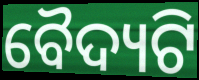
ବୈଦ୍ୟଟି